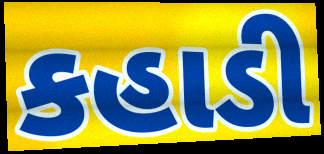
કહાડી